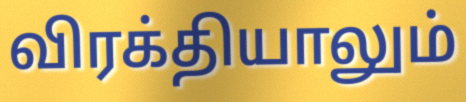
விரக்தியாலும்